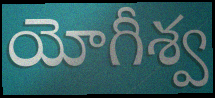
యోగీశ్వ